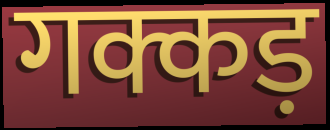
गक्कड़